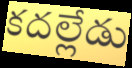
కదల్లేడు